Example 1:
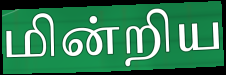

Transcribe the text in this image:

மின்றிய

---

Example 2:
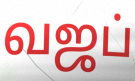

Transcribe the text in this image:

வஜப்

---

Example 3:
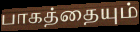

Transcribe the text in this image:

பாகத்தையும்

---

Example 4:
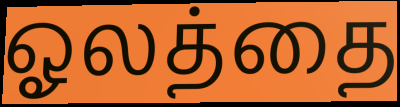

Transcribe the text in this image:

ஓலத்தை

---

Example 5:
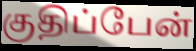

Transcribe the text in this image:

குதிப்பேன்